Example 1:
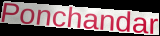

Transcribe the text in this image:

Ponchandar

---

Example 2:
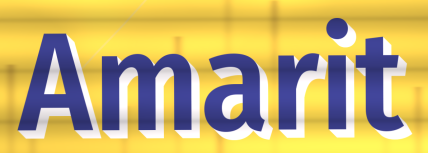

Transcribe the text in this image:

Amarit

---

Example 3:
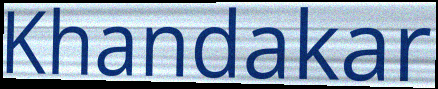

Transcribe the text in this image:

Khandakar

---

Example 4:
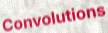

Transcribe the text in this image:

Convolutions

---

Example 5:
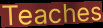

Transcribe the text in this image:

Teaches